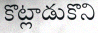
కొట్లాడుకొని